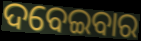
ଦବେଇବାର